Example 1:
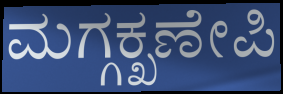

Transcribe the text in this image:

ಮಗ್ಗಕ್ಖಣೇಪಿ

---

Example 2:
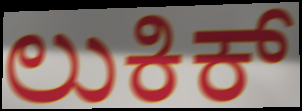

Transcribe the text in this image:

ಲುಕಿಕ್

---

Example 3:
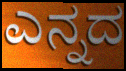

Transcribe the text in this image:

ಎನ್ನದ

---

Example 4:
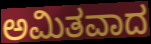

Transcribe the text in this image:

ಅಮಿತವಾದ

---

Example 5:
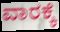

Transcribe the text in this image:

ವಾರಕ್ಕೆ